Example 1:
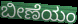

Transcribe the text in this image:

ಬೀಣೆಯಂ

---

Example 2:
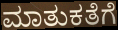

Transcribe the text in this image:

ಮಾತುಕತೆಗೆ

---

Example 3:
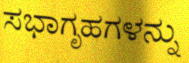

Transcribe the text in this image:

ಸಭಾಗೃಹಗಳನ್ನು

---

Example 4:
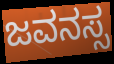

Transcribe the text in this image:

ಜವನಸ್ಸ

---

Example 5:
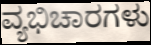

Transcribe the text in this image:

ವ್ಯಭಿಚಾರಗಳು